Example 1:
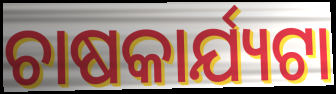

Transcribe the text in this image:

ଚାଷକାର୍ଯ୍ୟଟା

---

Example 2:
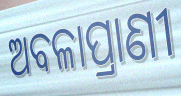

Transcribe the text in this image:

ଅବଳାପ୍ରାଣୀ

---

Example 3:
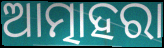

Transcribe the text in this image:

ଆତ୍ମାହରା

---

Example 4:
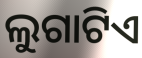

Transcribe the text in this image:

ଲୁଗାଟିଏ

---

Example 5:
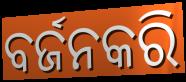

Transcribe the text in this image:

ବର୍ଜନକରି